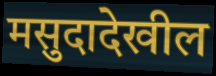
मसुदादेखील